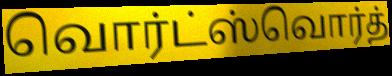
வொர்ட்ஸ்வொர்த்